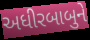
અધીરબાબુને